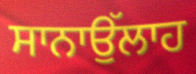
ਸਾਨਾਉੱਲਾਹ